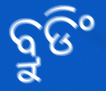
ବ୍ରୁଡିଂ